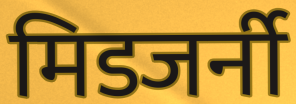
मिडजर्नी